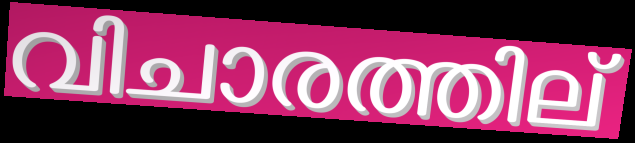
വിചാരത്തില്